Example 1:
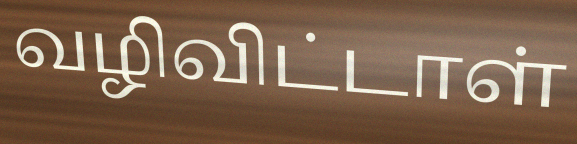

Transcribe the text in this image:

வழிவிட்டாள்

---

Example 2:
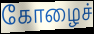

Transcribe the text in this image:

கோழைச்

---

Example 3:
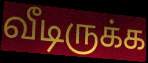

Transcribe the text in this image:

வீடிருக்க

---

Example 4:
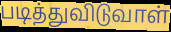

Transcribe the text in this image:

படித்துவிடுவாள்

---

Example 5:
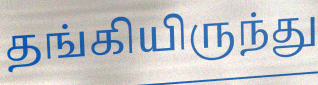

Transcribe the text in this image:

தங்கியிருந்து